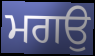
ਮਗਉ